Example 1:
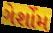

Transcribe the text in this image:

ગેર્શોમ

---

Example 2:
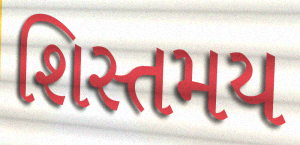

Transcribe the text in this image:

શિસ્તમય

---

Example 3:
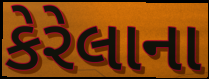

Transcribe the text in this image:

કેરેલાના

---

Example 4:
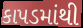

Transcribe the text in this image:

કાપડમાંથી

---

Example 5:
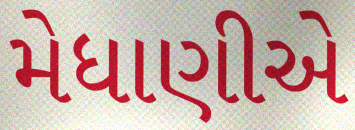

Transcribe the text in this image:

મેધાણીએ